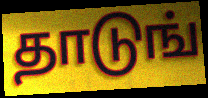
தாடுங்